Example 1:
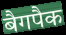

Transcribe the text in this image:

बैगपैक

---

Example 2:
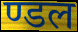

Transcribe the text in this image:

ण्डल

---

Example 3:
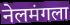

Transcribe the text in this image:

नेलमंगला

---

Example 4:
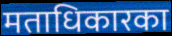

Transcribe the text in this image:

मताधिकारका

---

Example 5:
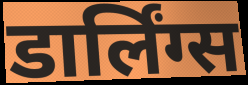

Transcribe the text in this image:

डार्लिंग्स